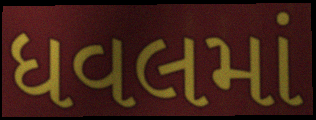
ધવલમાં